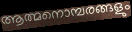
ആത്മനൊമ്പരങ്ങളും